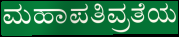
ಮಹಾಪತಿವ್ರತೆಯ